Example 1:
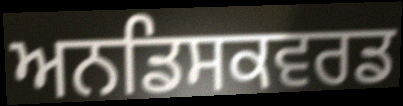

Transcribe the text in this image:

ਅਨਡਿਸਕਵਰਡ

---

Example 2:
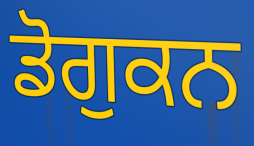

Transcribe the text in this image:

ਡੋਗੁਕਨ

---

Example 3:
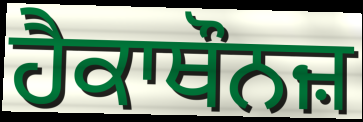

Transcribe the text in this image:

ਹੈਕਾਥੌਨਜ਼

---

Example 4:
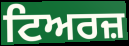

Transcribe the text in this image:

ਟਿਅਰਜ਼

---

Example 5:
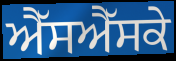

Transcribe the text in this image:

ਐੱਸਐੱਸਕੇ